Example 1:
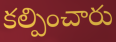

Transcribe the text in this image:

కల్పించారు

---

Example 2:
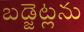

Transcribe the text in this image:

బడ్జెట్లను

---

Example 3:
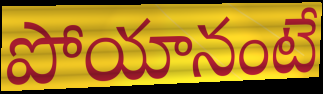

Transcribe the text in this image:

పోయానంటే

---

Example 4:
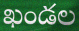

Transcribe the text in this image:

ఖండల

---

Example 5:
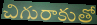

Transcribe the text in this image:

చిగురాకుతో